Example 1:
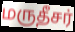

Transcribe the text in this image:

மருதீசர்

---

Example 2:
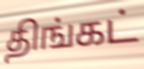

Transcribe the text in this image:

திங்கட்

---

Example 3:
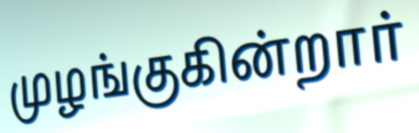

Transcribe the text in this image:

முழங்குகின்றார்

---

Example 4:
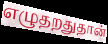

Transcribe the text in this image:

எழுதறதுதான்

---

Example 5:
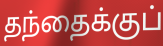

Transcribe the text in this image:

தந்தைக்குப்